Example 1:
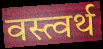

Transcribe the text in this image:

वस्त्वर्थ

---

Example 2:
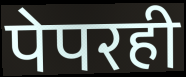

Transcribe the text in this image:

पेपरही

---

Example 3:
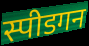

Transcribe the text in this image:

स्पीडगन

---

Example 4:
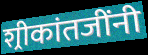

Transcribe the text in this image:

श्रीकांतजींनी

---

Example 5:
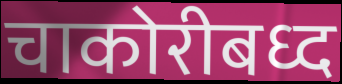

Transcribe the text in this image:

चाकोरीबध्द